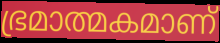
ഭ്രമാത്മകമാണ്